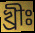
খ্রীঃ